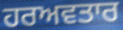
ਹਰਅਵਤਾਰ